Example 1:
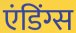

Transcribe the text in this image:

एंडिंग्स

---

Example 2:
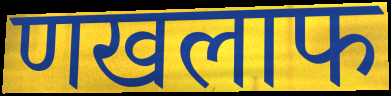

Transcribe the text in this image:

णखलाफ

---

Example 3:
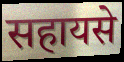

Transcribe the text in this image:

सहायसे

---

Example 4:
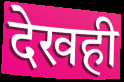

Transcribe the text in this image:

देखही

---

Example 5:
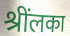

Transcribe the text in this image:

श्रींलका